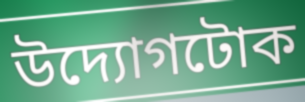
উদ্যোগটোক